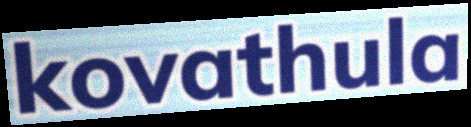
kovathula